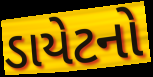
ડાયેટનો